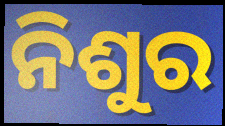
ନିଶୁର